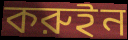
করুইন